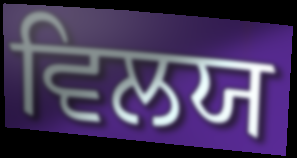
ਵਿਲਯ